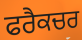
ਫਰੈਕਚਰ